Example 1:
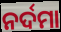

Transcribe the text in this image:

ନର୍ଦମା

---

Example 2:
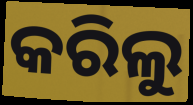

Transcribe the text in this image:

କରିଲୁ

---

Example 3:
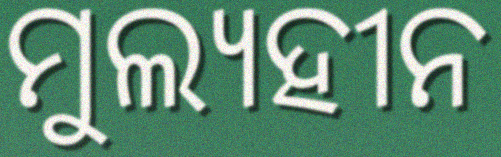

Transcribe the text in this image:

ମୁଲ୍ୟହୀନ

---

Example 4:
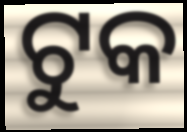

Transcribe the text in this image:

ଟୁକ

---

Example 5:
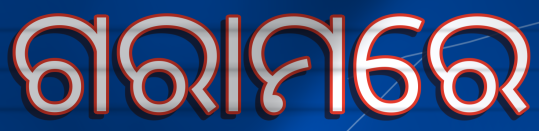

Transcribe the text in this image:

ଗରାମରେ